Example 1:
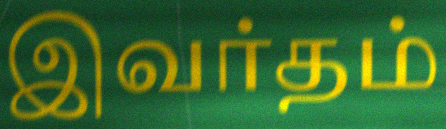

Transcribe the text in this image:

இவர்தம்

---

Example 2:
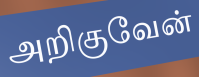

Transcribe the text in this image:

அறிகுவேன்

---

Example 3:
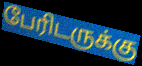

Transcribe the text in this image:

பேரிடருக்கு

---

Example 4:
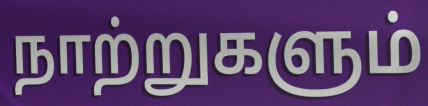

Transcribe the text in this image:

நாற்றுகளும்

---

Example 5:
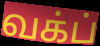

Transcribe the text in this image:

வக்ப்